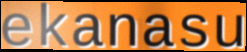
ekanasu